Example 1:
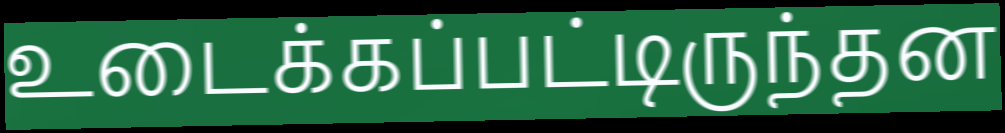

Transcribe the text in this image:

உடைக்கப்பட்டிருந்தன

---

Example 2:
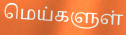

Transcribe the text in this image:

மெய்களுள்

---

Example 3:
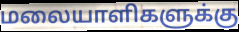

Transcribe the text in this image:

மலையாளிகளுக்கு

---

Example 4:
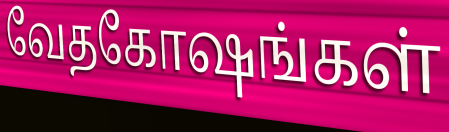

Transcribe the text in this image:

வேதகோஷங்கள்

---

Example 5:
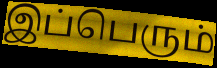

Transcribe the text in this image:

இப்பெரும்